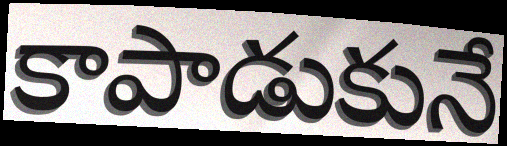
కాపాడుకునే